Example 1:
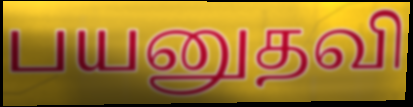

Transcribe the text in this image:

பயனுதவி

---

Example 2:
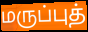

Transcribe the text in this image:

மருப்புத்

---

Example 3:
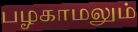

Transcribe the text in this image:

பழகாமலும்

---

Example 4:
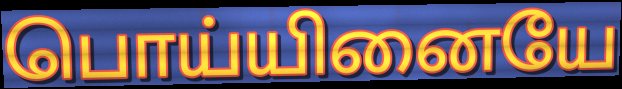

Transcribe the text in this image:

பொய்யினையே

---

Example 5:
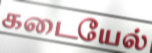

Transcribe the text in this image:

கடையேல்